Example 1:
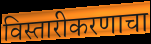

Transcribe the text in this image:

विस्तारीकरणाचा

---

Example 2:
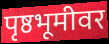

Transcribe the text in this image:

पृष्ठभूमीवर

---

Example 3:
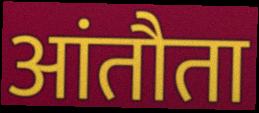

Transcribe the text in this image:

आंतौता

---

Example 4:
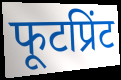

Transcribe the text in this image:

फूटप्रिंट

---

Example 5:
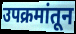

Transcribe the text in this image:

उपक्रमांतून